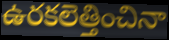
ఉరకలెత్తించినా